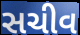
સચીવ